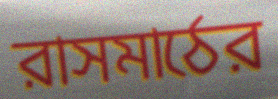
রাসমাঠের